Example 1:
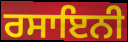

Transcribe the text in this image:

ਰਸਾਇਨੀ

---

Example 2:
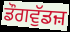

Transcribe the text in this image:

ਡੌਗਵੁੱਡਜ਼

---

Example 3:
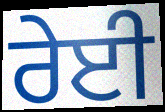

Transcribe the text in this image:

ਰੇਈ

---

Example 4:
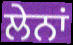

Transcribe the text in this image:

ਲੇਨਾਂ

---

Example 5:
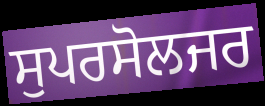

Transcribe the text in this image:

ਸੁਪਰਸੋਲਜਰ